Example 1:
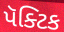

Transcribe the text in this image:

પૅક્ટિક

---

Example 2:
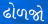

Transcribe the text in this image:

ઢોળજો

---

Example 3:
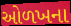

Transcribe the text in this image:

ઓળખના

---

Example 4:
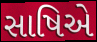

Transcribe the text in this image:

સાષિએ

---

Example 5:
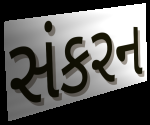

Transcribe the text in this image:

સંકરન